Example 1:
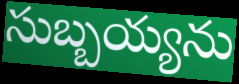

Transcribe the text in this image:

సుబ్బయ్యను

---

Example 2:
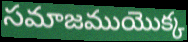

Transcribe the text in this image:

సమాజముయొక్క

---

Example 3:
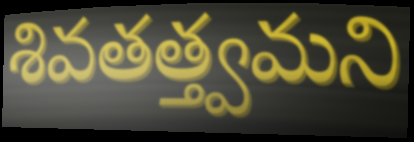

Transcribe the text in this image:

శివతత్త్వమని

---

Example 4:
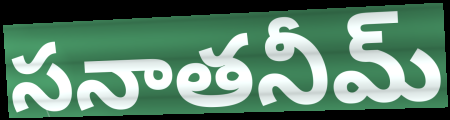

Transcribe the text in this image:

సనాతనీమ్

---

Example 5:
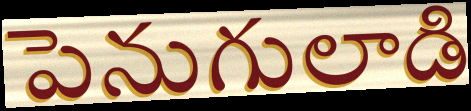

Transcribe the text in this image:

పెనుగులాడి